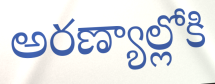
అరణ్యాల్లోకి